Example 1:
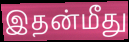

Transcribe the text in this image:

இதன்மீது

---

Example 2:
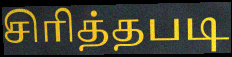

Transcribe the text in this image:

சிரித்தபடி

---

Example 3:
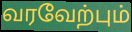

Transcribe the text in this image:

வரவேற்பும்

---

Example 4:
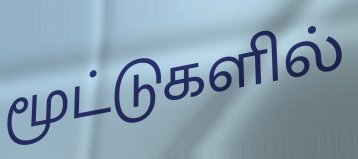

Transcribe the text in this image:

மூட்டுகளில்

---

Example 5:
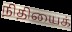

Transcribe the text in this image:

நிதியைக்